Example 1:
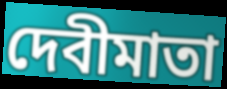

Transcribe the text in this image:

দেবীমাতা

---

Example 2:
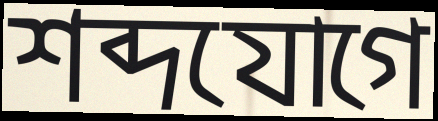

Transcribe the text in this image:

শব্দযোগে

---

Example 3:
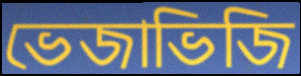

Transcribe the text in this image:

ভেজাভিজি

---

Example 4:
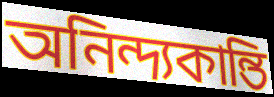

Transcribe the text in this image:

অনিন্দ্যকান্তি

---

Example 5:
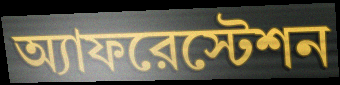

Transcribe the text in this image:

অ্যাফরেস্টেশন